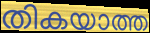
തികയാത്ത